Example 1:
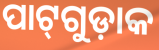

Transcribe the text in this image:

ପାଟ୍‌ଗୁଡ଼ାକ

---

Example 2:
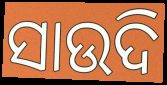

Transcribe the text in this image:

ସାଉଦି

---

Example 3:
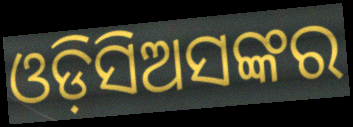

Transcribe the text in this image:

ଓଡ଼ିସିଅସଙ୍କର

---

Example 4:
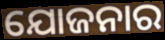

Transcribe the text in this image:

ଯୋଜନାର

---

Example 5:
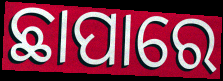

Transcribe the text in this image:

ଛାପାରେ